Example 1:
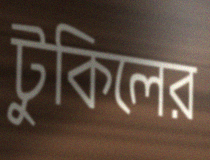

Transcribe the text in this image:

টুকিলের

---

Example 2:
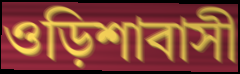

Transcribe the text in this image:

ওড়িশাবাসী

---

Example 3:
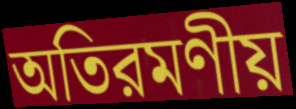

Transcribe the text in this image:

অতিরমণীয়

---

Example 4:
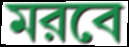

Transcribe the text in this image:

মরবে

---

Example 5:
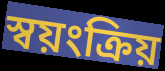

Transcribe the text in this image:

স্বয়ংক্রিয়